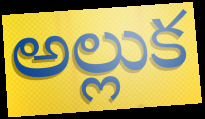
అల్లుక